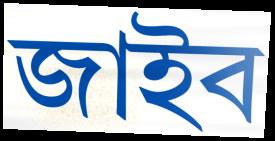
জাইব